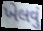
ખેલવું